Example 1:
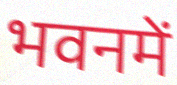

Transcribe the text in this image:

भवनमें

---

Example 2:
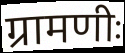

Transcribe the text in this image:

ग्रामणीः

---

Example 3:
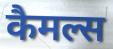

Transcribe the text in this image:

कैमल्स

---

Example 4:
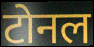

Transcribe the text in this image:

टोनल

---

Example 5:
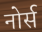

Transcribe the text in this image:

नोर्स